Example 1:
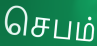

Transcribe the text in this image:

செபம்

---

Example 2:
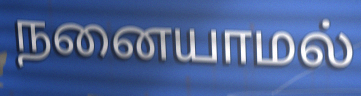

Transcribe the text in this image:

நனையாமல்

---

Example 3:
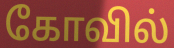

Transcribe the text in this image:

கோவில்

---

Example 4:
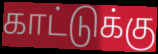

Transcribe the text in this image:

காட்டுக்கு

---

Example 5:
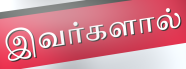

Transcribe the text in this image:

இவர்களால்